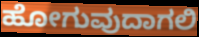
ಹೋಗುವುದಾಗಲಿ